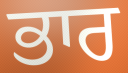
ਭਾਰ